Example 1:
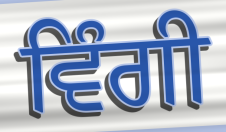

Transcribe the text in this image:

ਵਿੰਗੀ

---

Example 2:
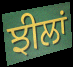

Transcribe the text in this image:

ਝੀਲਾਂ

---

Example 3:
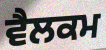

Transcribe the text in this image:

ਵੈਲਕਮ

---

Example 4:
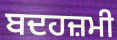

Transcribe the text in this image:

ਬਦਹਜ਼ਮੀ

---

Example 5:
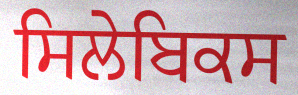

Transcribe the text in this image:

ਸਿਲੇਬਿਕਸ